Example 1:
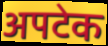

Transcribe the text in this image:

अपटेक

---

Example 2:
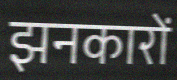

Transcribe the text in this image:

झनकारों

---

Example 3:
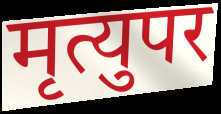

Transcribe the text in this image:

मृत्युपर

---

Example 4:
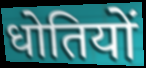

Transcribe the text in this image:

धोतियों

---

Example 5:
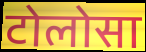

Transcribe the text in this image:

टोलोसा